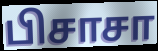
பிசாசா